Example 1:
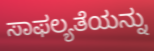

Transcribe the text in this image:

ಸಾಫಲ್ಯತೆಯನ್ನು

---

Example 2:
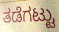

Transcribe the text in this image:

ತಡೆಗಟ್ಟು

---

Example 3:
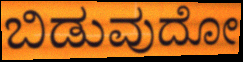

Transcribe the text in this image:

ಬಿಡುವುದೋ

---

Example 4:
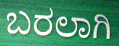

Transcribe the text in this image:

ಬರಲಾಗಿ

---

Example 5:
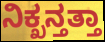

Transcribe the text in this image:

ನಿಕ್ಖನ್ತತ್ತಾ